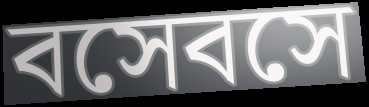
বসেবসে